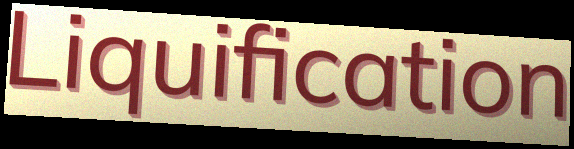
Liquification